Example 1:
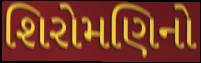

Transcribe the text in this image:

શિરોમણિનો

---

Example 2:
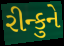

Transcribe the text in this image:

રીન્કુને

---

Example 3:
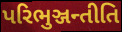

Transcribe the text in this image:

પરિભુઞ્જન્તીતિ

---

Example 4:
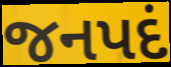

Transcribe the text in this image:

જનપદં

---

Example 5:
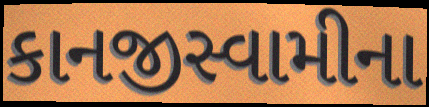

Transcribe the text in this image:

કાનજીસ્વામીના